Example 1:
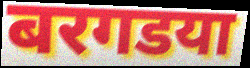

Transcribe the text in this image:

बरगडया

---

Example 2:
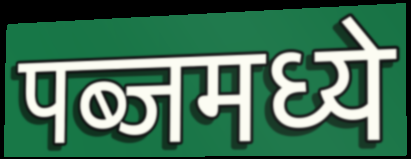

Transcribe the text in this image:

पब्जमध्ये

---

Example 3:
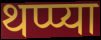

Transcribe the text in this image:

थप्प्या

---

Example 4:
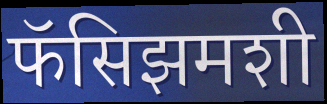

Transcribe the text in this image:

फॅसिझमशी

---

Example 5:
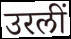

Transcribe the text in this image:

उरलीं